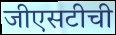
जीएसटीची